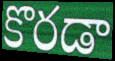
కొరడా